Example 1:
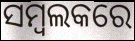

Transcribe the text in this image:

ସମ୍ବଲକରେ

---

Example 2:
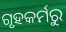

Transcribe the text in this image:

ଗୃହକର୍ମରୁ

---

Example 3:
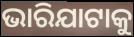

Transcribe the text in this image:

ଭାରିଯାଟାକୁ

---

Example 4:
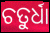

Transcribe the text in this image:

ଚତୁର୍ଧା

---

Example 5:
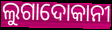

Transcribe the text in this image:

ଲୁଗାଦୋକାନୀ